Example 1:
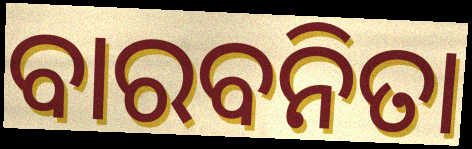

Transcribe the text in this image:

ବାରବନିତା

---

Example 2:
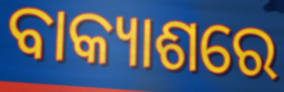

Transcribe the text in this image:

ବାକ୍ୟାଶରେ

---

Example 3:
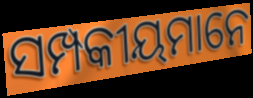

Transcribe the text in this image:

ସମ୍ପକୀୟମାନେ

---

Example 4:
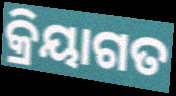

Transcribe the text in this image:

କ୍ରିୟାଗତ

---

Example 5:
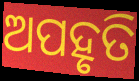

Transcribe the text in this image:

ଅପହୃତି